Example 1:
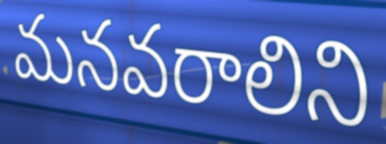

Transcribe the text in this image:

మనవరాలిని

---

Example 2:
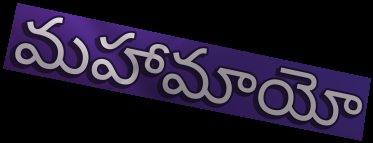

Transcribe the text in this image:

మహామాయో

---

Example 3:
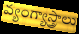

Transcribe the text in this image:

వ్యంగ్యాస్త్రాలు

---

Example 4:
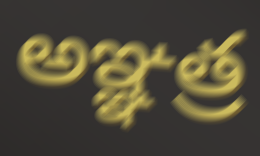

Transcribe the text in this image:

అఞ్ఞత్ర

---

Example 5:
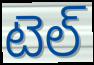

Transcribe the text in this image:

టెల్